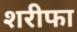
शरीफा